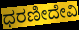
ಧರಣೀದೇವಿ